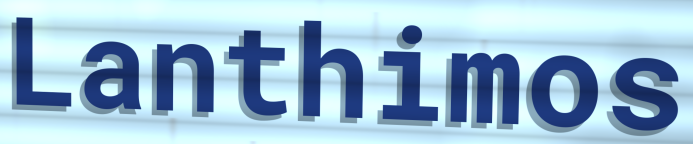
Lanthimos